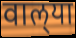
वाल्या